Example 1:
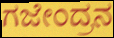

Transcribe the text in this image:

ಗಜೇಂದ್ರನ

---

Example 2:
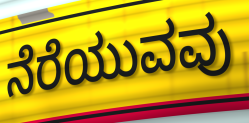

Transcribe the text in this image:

ನೆರೆಯುವವು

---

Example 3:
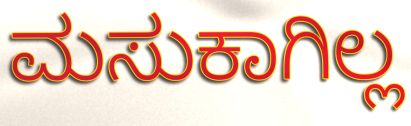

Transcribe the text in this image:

ಮಸುಕಾಗಿಲ್ಲ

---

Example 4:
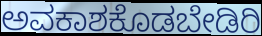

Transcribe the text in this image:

ಅವಕಾಶಕೊಡಬೇಡಿರಿ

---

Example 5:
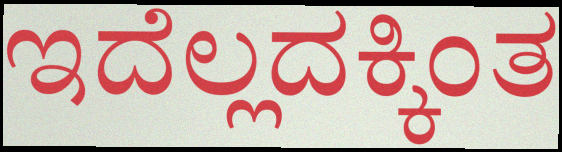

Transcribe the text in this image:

ಇದೆಲ್ಲದಕ್ಕಿಂತ